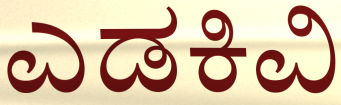
ಎಡಕಿವಿ